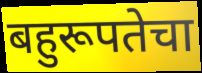
बहुरूपतेचा